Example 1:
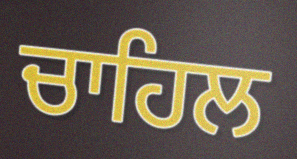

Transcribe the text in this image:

ਚਾਹਿਲ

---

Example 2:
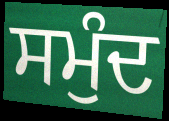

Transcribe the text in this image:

ਸਮੁੰਦ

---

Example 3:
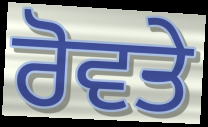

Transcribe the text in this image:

ਰੋਵਤੇ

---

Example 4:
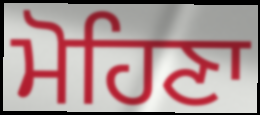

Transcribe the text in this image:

ਮੋਹਿਣਾ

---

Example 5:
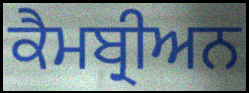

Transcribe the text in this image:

ਕੈਮਬ੍ਰੀਅਨ